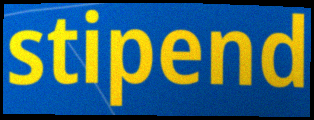
stipend